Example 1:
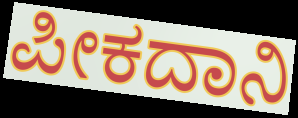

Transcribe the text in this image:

ಪೀಕದಾನಿ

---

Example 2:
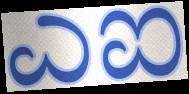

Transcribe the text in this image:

ಎಐ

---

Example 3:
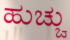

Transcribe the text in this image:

ಹುಚ್ಚು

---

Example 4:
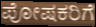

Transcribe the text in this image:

ಪೋಷಕರಿಗೆ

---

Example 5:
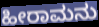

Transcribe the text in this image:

ಹೀರಾಮನು